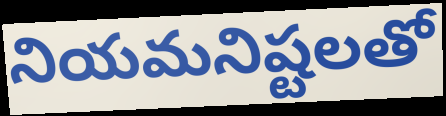
నియమనిష్టలతో